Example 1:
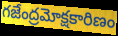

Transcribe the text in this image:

గజేంద్రమోక్షకారిణం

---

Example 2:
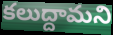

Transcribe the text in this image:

కలుద్దామని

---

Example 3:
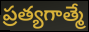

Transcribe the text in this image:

ప్రత్యగాత్మే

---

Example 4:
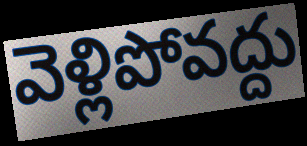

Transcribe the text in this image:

వెళ్లిపోవద్దు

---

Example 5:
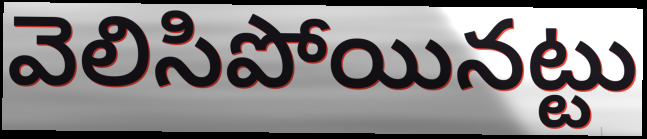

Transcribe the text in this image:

వెలిసిపోయినట్టు